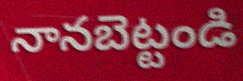
నానబెట్టండి